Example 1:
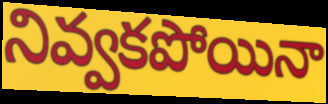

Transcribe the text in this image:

నివ్వకపోయినా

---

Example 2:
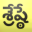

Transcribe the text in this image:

శ్రేష్ఠే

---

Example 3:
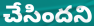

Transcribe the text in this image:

చేసిందని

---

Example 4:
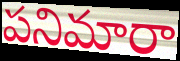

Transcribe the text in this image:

పనిమారా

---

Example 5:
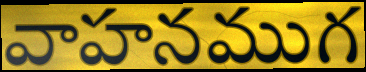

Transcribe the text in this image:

వాహనముగ